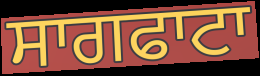
ਸਾਗਫਾਟਾ